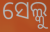
ସେଲ୍କୁ